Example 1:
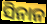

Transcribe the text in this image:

ସିନାନ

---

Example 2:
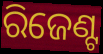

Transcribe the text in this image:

ରିଜେଣ୍ଟ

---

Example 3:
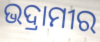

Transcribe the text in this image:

ଭଦ୍ରାମୀର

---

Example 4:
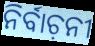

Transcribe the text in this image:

ନିର୍ବାଚ଼ନୀ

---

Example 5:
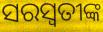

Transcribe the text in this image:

ସରସ୍ବତୀଙ୍କ